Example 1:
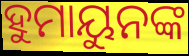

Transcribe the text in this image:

ହୁମାୟୁନଙ୍କ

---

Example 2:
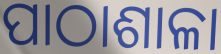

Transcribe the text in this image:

ପାଠାଶାଳା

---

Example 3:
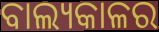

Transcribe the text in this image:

ବାଲ୍ୟକାଳର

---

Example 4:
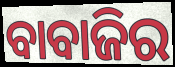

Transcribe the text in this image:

ବାବାଜିର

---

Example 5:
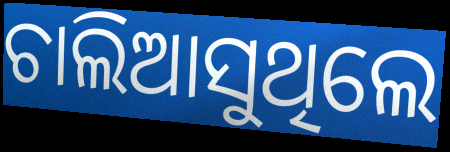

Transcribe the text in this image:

ଚାଲିଆସୁଥିଲେ